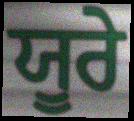
ਯੂਰੇ